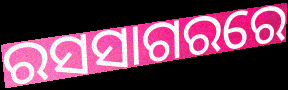
ରସସାଗରରେ